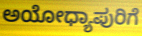
ಅಯೋಧ್ಯಾಪುರಿಗೆ